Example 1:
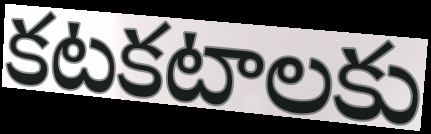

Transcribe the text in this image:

కటకటాలకు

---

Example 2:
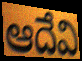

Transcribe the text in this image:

ఆదేవి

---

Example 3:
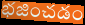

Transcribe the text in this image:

భజించడం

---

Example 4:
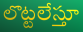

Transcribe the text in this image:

లొట్టలేస్తూ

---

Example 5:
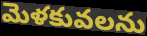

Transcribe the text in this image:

మెళకువలను